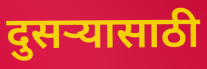
दुसऱ्यासाठी